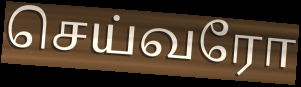
செய்வரோ